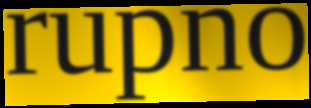
rupno